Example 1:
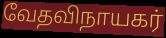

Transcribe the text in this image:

வேதவிநாயகர்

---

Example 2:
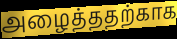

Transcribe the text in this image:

அழைத்ததற்காக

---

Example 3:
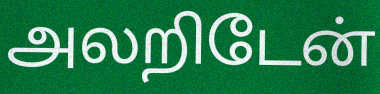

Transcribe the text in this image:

அலறிடேன்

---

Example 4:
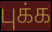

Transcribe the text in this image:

புக்க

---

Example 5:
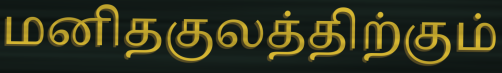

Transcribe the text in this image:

மனிதகுலத்திற்கும்